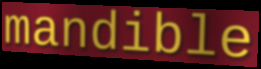
mandible